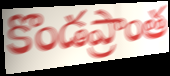
కొండప్రాంత